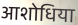
आशोधिया